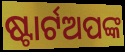
ଷ୍ଟାର୍ଟଅପଙ୍କ